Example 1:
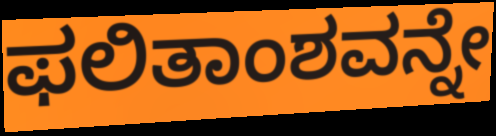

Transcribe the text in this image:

ಫಲಿತಾಂಶವನ್ನೇ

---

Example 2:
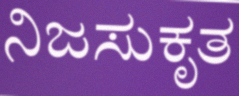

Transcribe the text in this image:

ನಿಜಸುಕೃತ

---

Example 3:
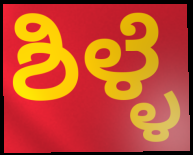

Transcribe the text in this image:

ಶಿಳ್ಳೆ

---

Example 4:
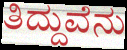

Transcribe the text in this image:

ತಿದ್ದುವೆನು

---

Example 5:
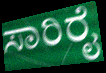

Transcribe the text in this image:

ಸಾರಿರೈ